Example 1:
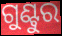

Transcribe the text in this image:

ଗୁଣ୍ଟୁର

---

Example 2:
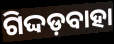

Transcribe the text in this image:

ଗିଦ୍ଦଡ଼ବାହା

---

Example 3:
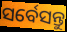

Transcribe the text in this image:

ସର୍ବେସନ୍ତୁ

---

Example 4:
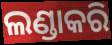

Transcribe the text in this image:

ଲଣ୍ଡାକରି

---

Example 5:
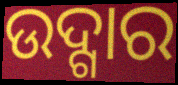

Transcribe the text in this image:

ଉଦ୍ଗାର